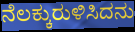
ನೆಲಕ್ಕುರುಳಿಸಿದನು